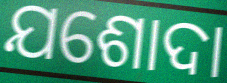
ଯଶୋଦା